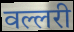
वल्लरी